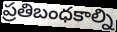
ప్రతిబంధకాల్ని